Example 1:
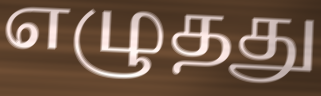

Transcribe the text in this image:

எழுதது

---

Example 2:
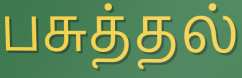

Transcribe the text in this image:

பசுத்தல்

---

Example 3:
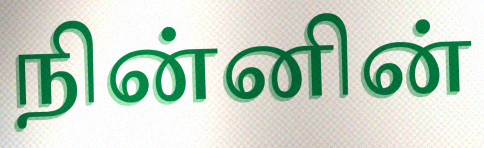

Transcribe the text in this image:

நின்னின்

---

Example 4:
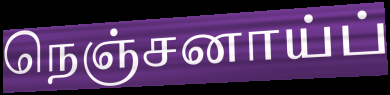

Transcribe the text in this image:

நெஞ்சனாய்ப்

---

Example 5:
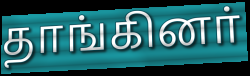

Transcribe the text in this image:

தாங்கினர்